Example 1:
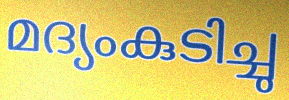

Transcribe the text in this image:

മദ്യംകുടിച്ചു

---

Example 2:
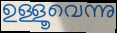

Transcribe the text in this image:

ഉള്ളൂവെന്നു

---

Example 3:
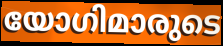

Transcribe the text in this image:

യോഗിമാരുടെ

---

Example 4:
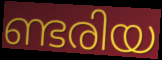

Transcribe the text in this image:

ണ്ടരിയ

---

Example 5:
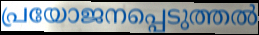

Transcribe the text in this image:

പ്രയോജനപ്പെടുത്തൽ